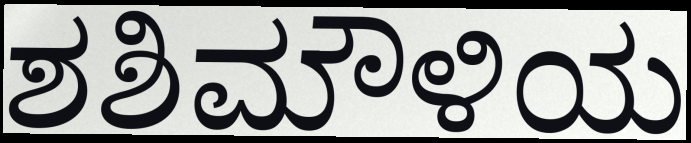
ಶಶಿಮೌಳಿಯ